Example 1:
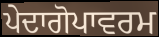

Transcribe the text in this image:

ਪੇਦਾਗੋਪਾਵਰਮ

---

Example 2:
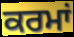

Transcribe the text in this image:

ਕਰਮਾਂ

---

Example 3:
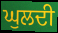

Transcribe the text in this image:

ਘੁਲਦੀ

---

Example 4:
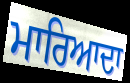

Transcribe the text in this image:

ਮਾਰਿਆਦਾ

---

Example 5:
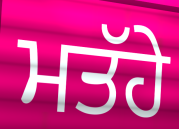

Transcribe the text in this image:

ਮਤੱਹੇ